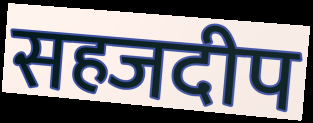
सहजदीप